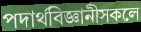
পদাৰ্থবিজ্ঞানীসকলে